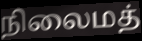
நிலைமத்